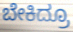
ಬೇಕಿದ್ರೂ